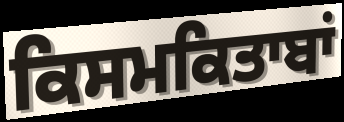
ਕਿਸਮਕਿਤਾਬਾਂ